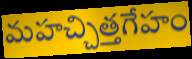
మహచ్చిత్తగేహం